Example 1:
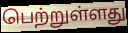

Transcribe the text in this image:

பெற்றுள்ளது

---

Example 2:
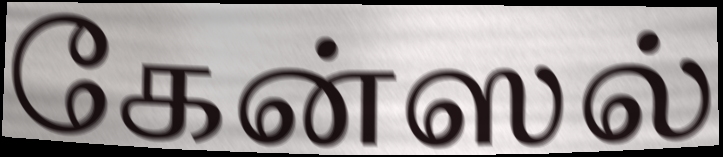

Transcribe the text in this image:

கேன்ஸல்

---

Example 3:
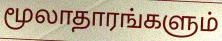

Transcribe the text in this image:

மூலாதாரங்களும்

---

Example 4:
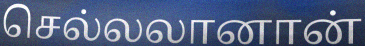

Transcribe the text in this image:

செல்லலானான்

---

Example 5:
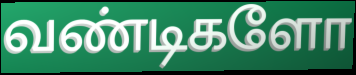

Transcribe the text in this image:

வண்டிகளோ